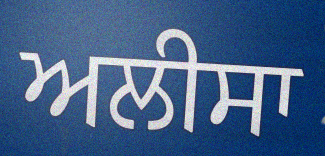
ਅਲੀਸਾ